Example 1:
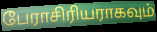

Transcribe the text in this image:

பேராசிரியராகவும்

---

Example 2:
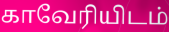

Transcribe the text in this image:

காவேரியிடம்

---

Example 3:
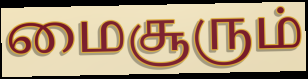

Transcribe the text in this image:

மைசூரும்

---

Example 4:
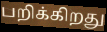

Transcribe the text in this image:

பறிக்கிறது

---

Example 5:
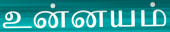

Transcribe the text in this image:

உன்னயம்